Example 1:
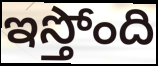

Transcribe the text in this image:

ఇస్తోంది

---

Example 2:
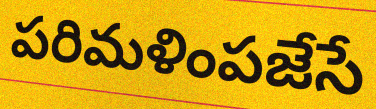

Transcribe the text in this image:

పరిమళింపజేసే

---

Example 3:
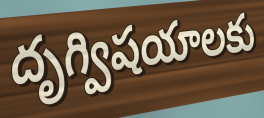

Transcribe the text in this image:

దృగ్విషయాలకు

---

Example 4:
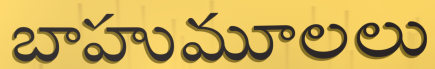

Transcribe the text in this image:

బాహుమూలలు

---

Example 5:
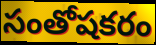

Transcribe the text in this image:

సంతోషకరం